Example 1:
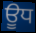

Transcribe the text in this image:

ਊਧ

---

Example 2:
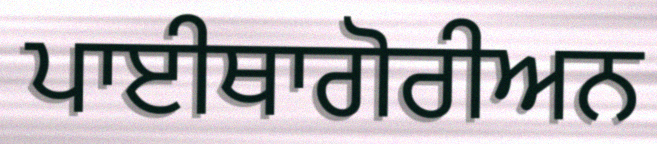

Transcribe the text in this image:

ਪਾਈਥਾਗੋਰੀਅਨ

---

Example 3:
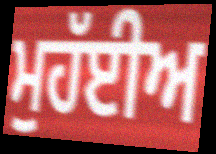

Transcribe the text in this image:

ਮੁਹੱਈਅ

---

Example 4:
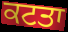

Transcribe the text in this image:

ਕਟਤਾ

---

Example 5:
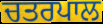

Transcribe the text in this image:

ਚਤਰਪਾਲ